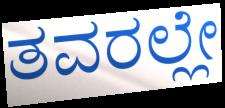
ತವರಲ್ಲೇ